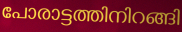
പോരാട്ടത്തിനിറങ്ങി